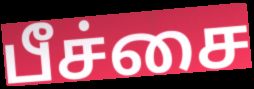
பீச்சை